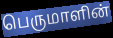
பெருமாளின்